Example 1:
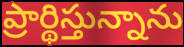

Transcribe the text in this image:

ప్రార్థిస్తున్నాను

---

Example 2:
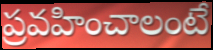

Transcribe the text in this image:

ప్రవహించాలంటే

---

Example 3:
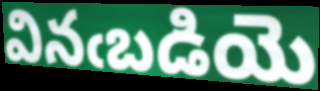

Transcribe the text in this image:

వినఁబడియె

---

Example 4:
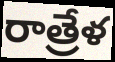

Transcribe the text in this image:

రాత్రేళ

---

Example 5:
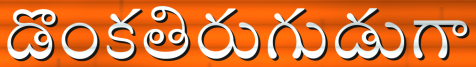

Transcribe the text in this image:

డొంకతిరుగుడుగా